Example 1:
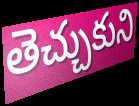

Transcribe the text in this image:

తెచ్చుకుని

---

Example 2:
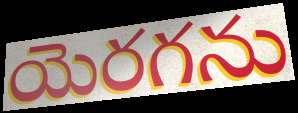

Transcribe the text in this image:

యెరగను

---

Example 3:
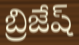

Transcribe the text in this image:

బ్రిజేష్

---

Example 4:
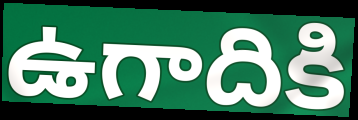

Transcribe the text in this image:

ఉగాదికి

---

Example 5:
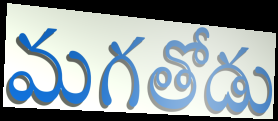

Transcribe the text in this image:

మగతోడు